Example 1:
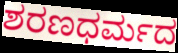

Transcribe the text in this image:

ಶರಣಧರ್ಮದ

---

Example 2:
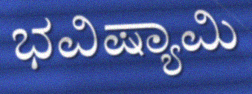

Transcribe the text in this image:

ಭವಿಷ್ಯಾಮಿ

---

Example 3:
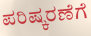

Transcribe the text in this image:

ಪರಿಷ್ಕರಣೆಗೆ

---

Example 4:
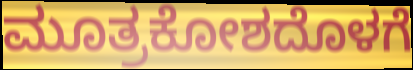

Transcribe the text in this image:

ಮೂತ್ರಕೋಶದೊಳಗೆ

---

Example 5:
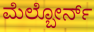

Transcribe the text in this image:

ಮೆಲ್ಬೋರ್ನ್